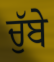
ਚੁੱਬੇ